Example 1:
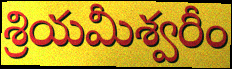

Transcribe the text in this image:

శ్రియమీశ్వరీం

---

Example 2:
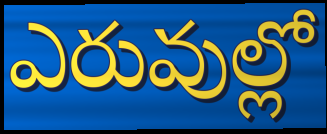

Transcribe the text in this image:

ఎరువుల్లో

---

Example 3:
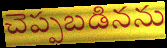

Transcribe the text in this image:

చెప్పబడినను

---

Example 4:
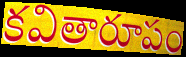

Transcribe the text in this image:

కవితారూపం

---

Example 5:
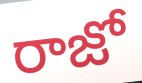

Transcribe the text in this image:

రాజో